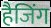
हैजिंग